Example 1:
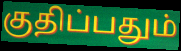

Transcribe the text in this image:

குதிப்பதும்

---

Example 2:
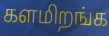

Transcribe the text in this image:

களமிறங்க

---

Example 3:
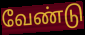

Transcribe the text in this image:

வேண்டு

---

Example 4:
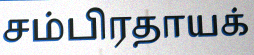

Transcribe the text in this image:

சம்பிரதாயக்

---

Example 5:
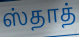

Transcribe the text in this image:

ஸ்தாத்